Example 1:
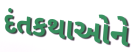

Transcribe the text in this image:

દંતકથાઓને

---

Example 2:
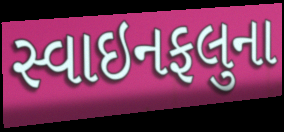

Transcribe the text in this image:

સ્વાઇનફલુના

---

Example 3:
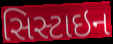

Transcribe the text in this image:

સિસ્ટાઇન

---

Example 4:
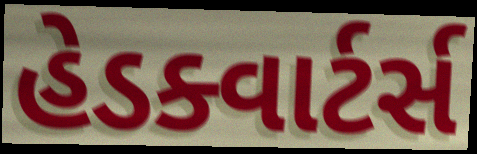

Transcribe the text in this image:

હેડક્વાર્ટર્સ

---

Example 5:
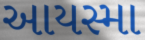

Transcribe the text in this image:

આયસ્મા